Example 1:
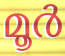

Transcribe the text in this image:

മൂർ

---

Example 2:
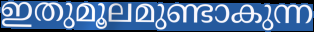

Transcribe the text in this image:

ഇതുമൂലമുണ്ടാകുന്ന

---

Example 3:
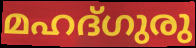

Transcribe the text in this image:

മഹദ്ഗുരു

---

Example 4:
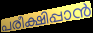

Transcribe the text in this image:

പരീക്ഷിപ്പാൻ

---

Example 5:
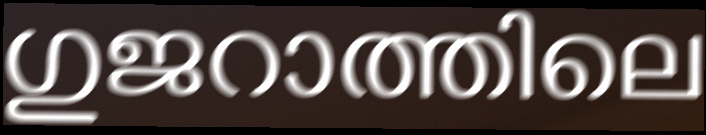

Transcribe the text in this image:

ഗുജറാത്തിലെ